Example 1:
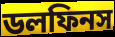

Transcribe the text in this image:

ডলফিনস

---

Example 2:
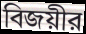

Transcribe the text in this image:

বিজয়ীর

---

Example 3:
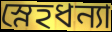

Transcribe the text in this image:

স্নেহধন্যা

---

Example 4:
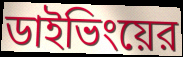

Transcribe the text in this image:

ডাইভিংয়ের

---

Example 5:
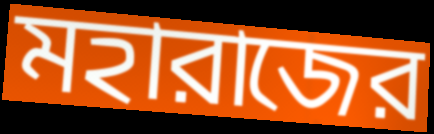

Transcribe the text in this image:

মহারাজের